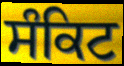
ਸੰਕਿਟ